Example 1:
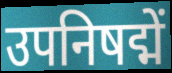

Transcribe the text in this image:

उपनिषद्में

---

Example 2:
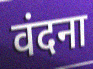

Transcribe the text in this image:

वंदना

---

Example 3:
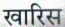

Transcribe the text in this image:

खारिस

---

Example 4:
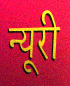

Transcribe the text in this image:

न्यूरी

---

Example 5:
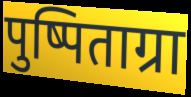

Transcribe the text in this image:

पुष्पिताग्रा